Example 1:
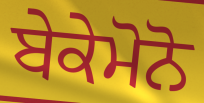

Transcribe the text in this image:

ਬੇਕੇਮੋਨੋ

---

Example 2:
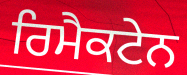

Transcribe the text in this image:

ਰਿਮੈਕਟੇਨ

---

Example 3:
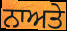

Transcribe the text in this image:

ਨਾਅਤੇ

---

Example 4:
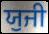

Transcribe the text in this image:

ਯੁਜੀ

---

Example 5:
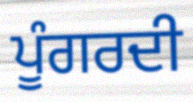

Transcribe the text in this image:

ਪੂੰਗਰਦੀ